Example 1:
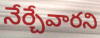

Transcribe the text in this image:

నేర్చేవారని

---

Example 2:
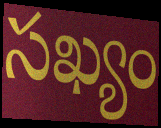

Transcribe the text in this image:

సఖ్యం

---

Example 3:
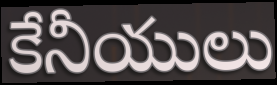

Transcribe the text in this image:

కేనీయులు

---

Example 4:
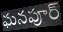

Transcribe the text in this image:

ఘనపూర్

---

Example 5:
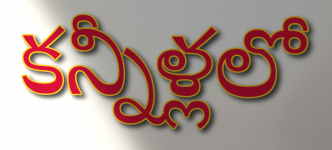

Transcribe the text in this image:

కన్నీళ్లలో